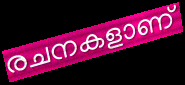
രചനകളാണ്